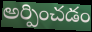
అర్పించడం